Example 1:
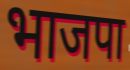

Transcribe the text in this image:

भाजपा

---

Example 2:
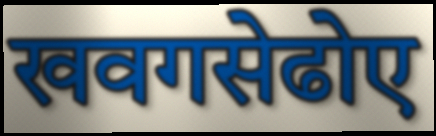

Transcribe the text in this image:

खवगसेढोए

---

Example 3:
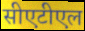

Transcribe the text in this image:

सीएटीएल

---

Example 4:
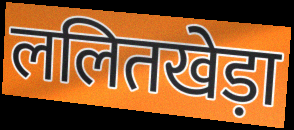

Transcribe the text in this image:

ललितखेड़ा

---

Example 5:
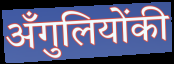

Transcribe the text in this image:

अँगुलियोंकी